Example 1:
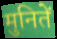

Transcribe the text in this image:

मुनितें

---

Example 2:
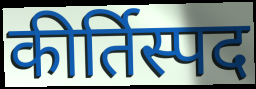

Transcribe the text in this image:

कीर्तिस्पद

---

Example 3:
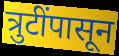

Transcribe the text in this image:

त्रुटींपासून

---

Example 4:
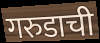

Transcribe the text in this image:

गरुडाची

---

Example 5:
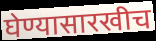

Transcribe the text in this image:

घेण्यासारखीच